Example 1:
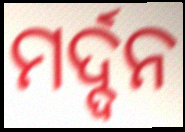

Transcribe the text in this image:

ମର୍ଦ୍ଦନ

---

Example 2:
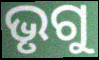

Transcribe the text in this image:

ଭୃଗୁ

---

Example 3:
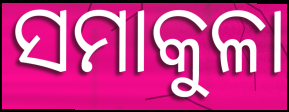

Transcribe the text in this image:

ସମାକୁଳା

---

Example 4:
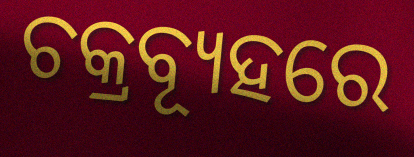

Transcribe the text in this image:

ଚକ୍ରବ୍ୟୂହରେ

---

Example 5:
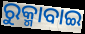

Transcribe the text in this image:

ରୁକ୍ମାବାଇ